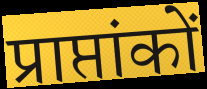
प्राप्तांकों